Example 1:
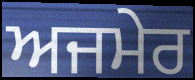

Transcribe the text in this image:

ਅਜਮੇਰ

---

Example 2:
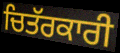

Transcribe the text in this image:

ਚਿਤੱਰਕਾਰੀ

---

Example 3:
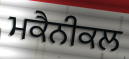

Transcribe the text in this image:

ਮਕੈਨੀਕਲ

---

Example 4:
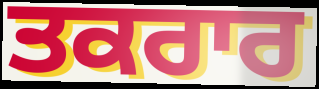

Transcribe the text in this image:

ਤਕਰਾਰ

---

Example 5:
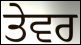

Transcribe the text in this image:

ਤੇਵਰ